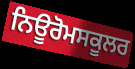
ਨਿਊਰੋਮਸਕੂਲਰ